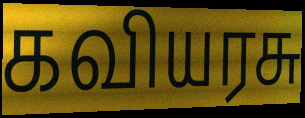
கவியரசு